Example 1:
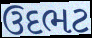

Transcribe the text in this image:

ઉદભટ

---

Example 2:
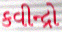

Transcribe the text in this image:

કવીન્દ્રો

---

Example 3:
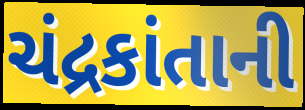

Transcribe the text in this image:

ચંદ્રકાંતાની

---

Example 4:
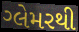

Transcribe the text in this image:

ગ્લેમરથી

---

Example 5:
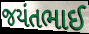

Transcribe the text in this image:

જયંતભાઈ